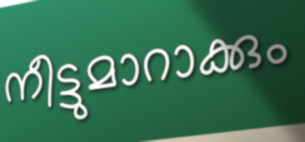
നീട്ടുമാറാക്കും